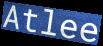
Atlee